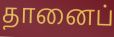
தானைப்